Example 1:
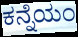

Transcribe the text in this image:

ಕನ್ನೆಯಂ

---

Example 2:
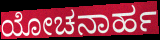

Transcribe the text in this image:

ಯೋಚನಾರ್ಹ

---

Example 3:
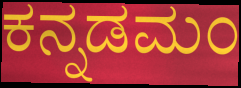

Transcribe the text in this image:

ಕನ್ನಡಮಂ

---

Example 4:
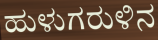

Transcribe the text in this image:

ಹುಳುಗರುಳಿನ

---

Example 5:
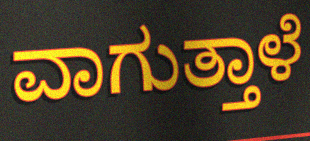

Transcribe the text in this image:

ವಾಗುತ್ತಾಳೆ